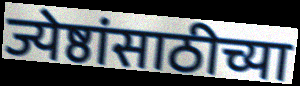
ज्येष्ठांसाठीच्या